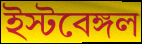
ইস্টবেঙ্গল